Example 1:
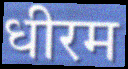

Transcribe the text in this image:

धीरम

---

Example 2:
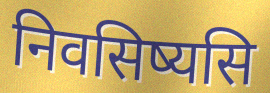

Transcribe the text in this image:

निवसिष्यसि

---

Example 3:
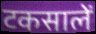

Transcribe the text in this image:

टकसालें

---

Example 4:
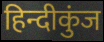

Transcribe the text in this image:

हिन्दीकुंज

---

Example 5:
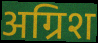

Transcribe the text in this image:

अग्रिश